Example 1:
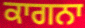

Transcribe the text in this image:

ਕਾਗਨਾ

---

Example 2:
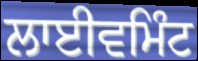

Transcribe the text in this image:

ਲਾਈਵਮਿੰਟ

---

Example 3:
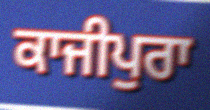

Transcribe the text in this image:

ਕਾਜੀਪੁਰਾ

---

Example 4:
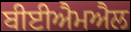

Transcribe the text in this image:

ਬੀਈਐਮਐਲ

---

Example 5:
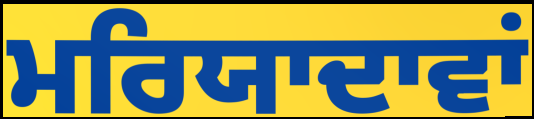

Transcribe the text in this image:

ਮਰਿਯਾਦਾਵਾਂ